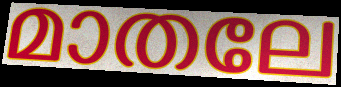
മാതലേ